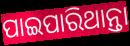
ପାଇପାରିଥାନ୍ତା